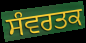
ਸੰਵਰਤਕ